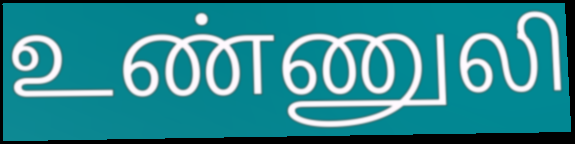
உண்ணுலி